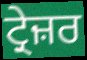
ਟ੍ਰੇਜ਼ਰ